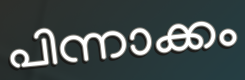
പിന്നാക്കം